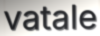
vatale